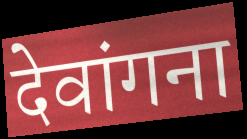
देवांगना